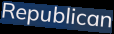
Republican